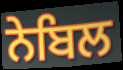
ਨੇਬਿਲ